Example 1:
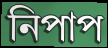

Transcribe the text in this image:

নিপাপ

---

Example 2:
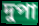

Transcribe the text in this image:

দুপা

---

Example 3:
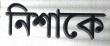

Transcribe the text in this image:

নিশাকে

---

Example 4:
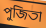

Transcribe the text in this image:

পুজিতা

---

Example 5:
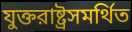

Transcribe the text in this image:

যুক্তরাষ্ট্রসমর্থিত